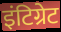
इंटिग्रेट